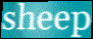
sheep